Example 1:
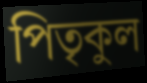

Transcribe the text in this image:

পিতৃকুল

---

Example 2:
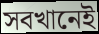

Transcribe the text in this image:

সবখানেই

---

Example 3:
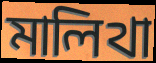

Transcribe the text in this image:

মালিথা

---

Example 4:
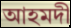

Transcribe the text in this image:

আহমদী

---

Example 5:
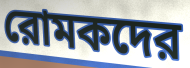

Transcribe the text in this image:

রোমকদের